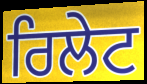
ਰਿਲੇਟ